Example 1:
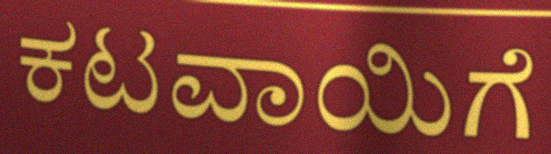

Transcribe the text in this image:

ಕಟವಾಯಿಗೆ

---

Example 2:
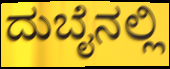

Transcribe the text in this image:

ದುಬೈನಲ್ಲಿ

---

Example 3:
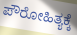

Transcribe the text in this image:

ಪೌರೋಹಿತ್ಯಕ್ಕೆ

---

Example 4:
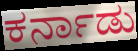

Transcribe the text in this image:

ಕರ್ನಾಡು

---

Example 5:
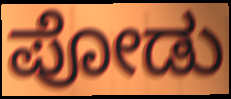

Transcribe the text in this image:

ಪೋಡು